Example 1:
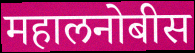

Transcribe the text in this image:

महालनोबीस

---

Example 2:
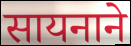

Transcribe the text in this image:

सायनाने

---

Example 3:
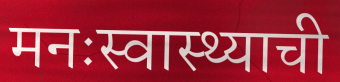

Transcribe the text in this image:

मनःस्वास्थ्याची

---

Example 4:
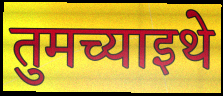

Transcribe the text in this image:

तुमच्याइथे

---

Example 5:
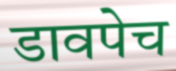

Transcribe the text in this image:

डावपेच